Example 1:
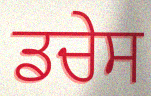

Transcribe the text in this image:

ਡਚੇਸ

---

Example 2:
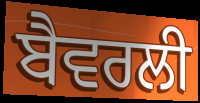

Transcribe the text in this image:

ਬੈਵਰਲੀ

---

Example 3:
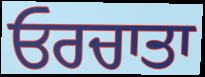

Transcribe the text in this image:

ਓਰਚਾਤਾ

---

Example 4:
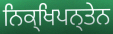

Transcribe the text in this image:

ਨਿਕ੍ਖਿਪਨ੍ਤੇਨ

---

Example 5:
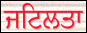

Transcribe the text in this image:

ਜਟਿਲਤਾ